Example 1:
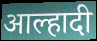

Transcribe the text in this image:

आल्हादी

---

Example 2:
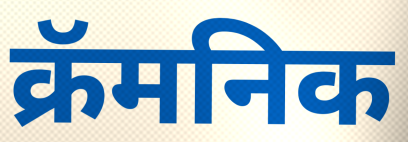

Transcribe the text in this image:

क्रॅमनिक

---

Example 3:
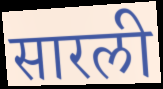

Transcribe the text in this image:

सारली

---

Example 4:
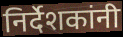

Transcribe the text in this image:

निर्देशकांनी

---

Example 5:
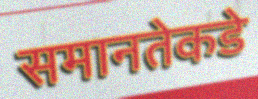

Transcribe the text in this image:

समानतेकडे